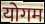
योगम